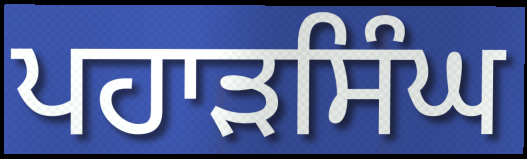
ਪਹਾੜਸਿੰਘ